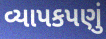
વ્યાપકપણું